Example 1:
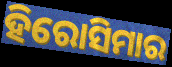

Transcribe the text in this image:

ହିରୋସିମାର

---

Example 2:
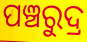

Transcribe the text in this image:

ପଞ୍ଚରୁଦ୍ର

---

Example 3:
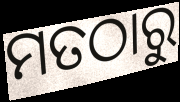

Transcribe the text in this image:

ମତଠାରୁ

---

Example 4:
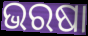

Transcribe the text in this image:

ଭରଷା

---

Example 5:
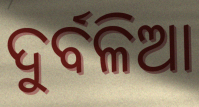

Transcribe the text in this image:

ଦୁର୍ବଳିଆ